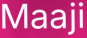
Maaji